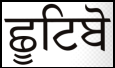
ਛੂਟਿਬੋ